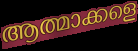
ആത്മാക്കളെ